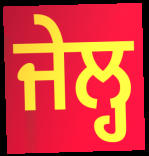
ਜੇਲ੍ਹ